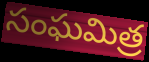
సంఘమిత్ర